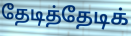
தேடித்தேடிக்